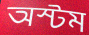
অস্টম